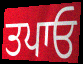
ਤਪਾਓ